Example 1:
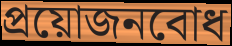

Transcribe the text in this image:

প্রয়োজনবোধ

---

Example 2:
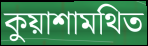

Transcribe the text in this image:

কুয়াশামথিত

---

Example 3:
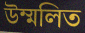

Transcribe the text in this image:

উম্মলিত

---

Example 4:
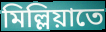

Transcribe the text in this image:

মিল্লিয়াতে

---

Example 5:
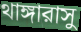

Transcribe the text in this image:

থাঙ্গারাসু